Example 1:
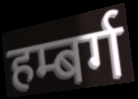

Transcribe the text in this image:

हम्बर्ग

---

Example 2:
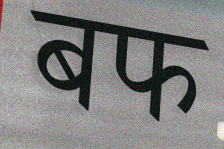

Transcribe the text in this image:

बफ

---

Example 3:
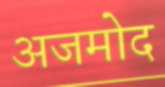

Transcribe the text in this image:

अजमोद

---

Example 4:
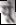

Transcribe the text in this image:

यूं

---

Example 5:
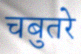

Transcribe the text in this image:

चबुतरे